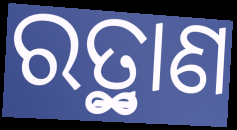
ରତ୍ର୍ଥାଣ